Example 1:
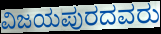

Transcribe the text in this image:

ವಿಜಯಪುರದವರು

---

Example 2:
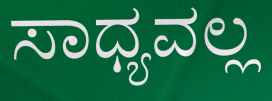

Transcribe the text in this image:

ಸಾಧ್ಯವಲ್ಲ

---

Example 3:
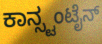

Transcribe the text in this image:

ಕಾನ್ಸ್ಟಂಟೈನ್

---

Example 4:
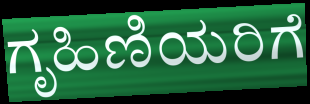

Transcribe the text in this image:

ಗೃಹಿಣಿಯರಿಗೆ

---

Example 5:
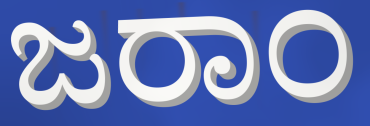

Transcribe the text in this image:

ಜರಾಂ